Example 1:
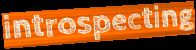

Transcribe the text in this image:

introspecting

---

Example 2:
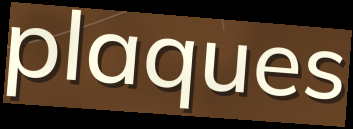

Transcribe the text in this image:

plaques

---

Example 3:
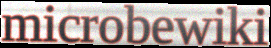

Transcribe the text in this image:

microbewiki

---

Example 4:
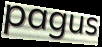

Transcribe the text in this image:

pagus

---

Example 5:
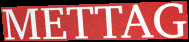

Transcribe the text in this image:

METTAG